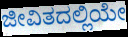
ಜೀವಿತದಲ್ಲಿಯೇ